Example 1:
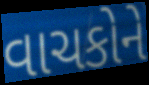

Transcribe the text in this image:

વાચકોને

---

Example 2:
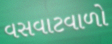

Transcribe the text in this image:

વસવાટવાળો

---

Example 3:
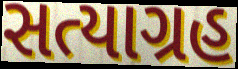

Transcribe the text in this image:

સત્યાગ્રહ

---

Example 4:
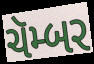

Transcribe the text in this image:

ચૅમ્બર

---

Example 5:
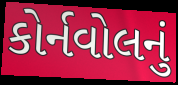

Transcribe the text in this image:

કોર્નવોલનું